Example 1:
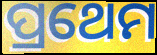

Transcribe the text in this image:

ପ୍ରଥେମ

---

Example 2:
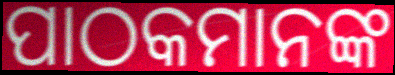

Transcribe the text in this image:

ପାଠକମାନଙ୍କ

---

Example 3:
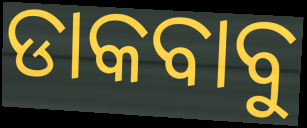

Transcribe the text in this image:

ଡାକବାବୁ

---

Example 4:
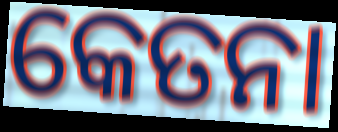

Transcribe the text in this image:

କେତନା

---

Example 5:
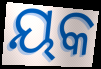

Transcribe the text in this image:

ୟକ